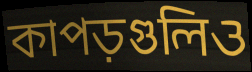
কাপড়গুলিও